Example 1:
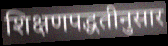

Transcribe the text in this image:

शिक्षणपद्धतीनुसार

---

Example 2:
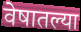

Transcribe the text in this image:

वेषातल्या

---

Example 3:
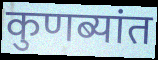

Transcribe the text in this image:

कुणब्यांत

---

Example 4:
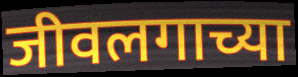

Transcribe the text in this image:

जीवलगाच्या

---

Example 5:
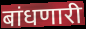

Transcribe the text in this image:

बांधणारी